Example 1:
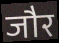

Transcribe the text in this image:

जौर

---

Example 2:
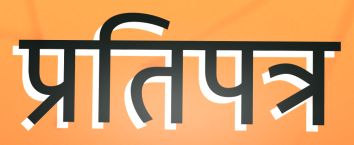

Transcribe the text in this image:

प्रतिपत्र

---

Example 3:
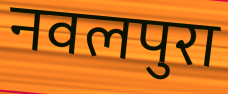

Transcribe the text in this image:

नवलपुरा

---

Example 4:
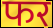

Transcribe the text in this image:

फर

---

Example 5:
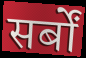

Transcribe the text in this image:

सर्बों